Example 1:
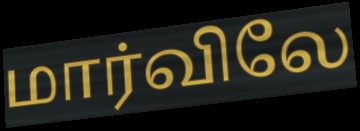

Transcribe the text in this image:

மார்விலே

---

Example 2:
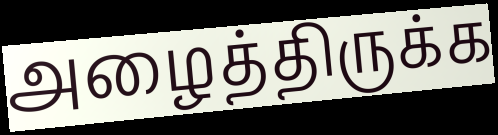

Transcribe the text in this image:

அழைத்திருக்க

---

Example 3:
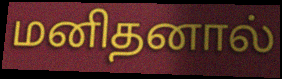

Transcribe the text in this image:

மனிதனால்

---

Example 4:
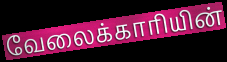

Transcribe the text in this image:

வேலைக்காரியின்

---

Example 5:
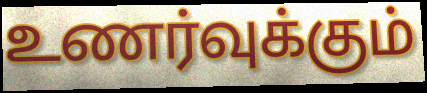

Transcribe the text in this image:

உணர்வுக்கும்